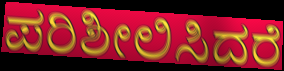
ಪರಿಶೀಲಿಸಿದರೆ